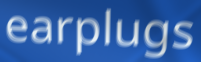
earplugs